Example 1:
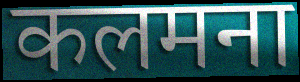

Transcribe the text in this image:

कलमना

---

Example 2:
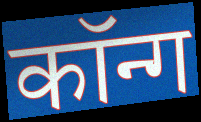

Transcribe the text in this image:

कॉन्ग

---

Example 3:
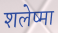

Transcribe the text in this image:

शलेष्मा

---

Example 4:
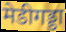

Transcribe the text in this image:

मेडीगड्डा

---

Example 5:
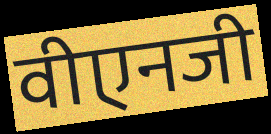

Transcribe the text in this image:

वीएनजी